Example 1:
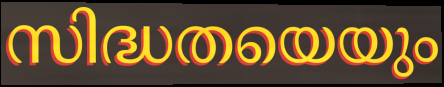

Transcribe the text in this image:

സിദ്ധതയെയും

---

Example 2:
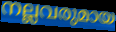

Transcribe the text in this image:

നല്ലവരുമായ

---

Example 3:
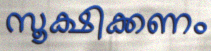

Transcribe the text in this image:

സൂക്ഷിക്കണം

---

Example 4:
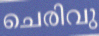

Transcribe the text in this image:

ചെരിവു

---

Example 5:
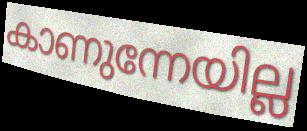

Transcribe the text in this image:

കാണുന്നേയില്ല